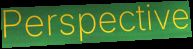
Perspective